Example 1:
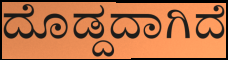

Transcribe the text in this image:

ದೊಡ್ದದಾಗಿದೆ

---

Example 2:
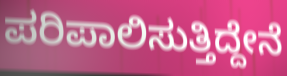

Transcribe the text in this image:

ಪರಿಪಾಲಿಸುತ್ತಿದ್ದೇನೆ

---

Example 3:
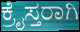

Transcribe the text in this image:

ಕ್ರೈಸ್ತರಾಗಿ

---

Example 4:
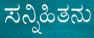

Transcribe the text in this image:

ಸನ್ನಿಹಿತನು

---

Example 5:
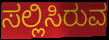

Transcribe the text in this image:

ಸಲ್ಲಿಸಿರುವ